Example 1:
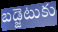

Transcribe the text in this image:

బడ్జెటుకు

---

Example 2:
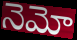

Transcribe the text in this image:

నెమో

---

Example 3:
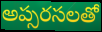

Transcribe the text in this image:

అప్సరసలతో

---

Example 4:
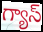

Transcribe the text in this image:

గ్యాస్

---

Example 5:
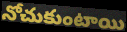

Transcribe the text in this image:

నోచుకుంటాయి